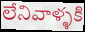
లేనివాళ్ళకి